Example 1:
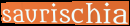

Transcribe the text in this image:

saurischia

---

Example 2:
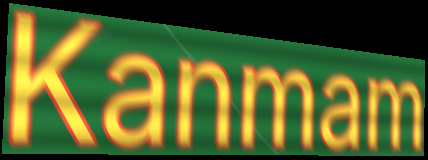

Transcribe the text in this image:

Kanmam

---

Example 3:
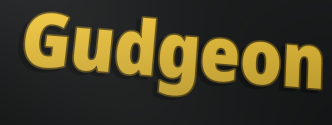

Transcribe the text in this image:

Gudgeon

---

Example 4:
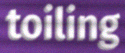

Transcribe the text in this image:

toiling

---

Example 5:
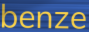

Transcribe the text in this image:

benze